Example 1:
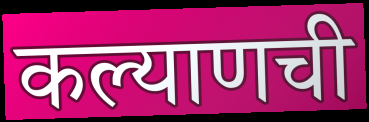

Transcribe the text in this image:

कल्याणची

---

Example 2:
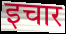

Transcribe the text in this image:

इचार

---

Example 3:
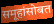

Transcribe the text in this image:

समूहांसोबत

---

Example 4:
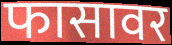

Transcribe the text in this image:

फासावर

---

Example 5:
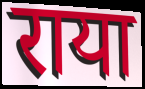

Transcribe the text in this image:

राया